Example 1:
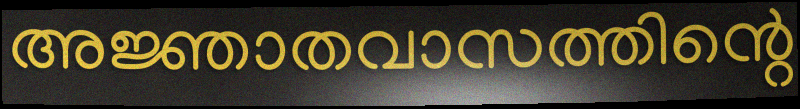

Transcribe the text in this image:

അജ്ഞാതവാസത്തിന്റെ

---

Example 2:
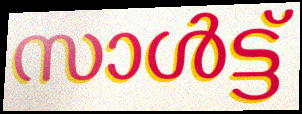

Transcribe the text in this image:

സാൾട്ട്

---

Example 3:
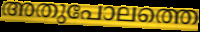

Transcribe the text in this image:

അതുപോലത്തെ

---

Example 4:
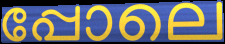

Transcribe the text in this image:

പ്പോലെ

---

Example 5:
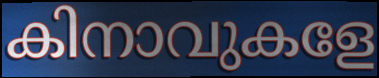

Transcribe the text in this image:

കിനാവുകളേ